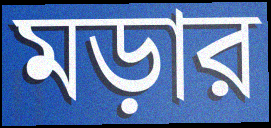
মড়ার